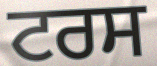
ਟਰਸ